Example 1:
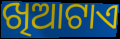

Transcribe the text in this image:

ଖିଆଟାଏ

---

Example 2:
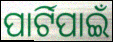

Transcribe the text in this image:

ପାର୍ଟିପାଇଁ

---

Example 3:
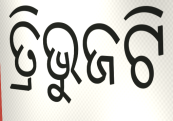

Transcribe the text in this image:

ତ୍ରିଭୁଜଟି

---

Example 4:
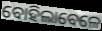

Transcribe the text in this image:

ବୋହିଲାବେଳେ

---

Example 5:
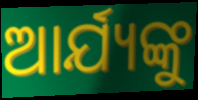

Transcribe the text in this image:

ଆର୍ଯ୍ୟଙ୍କୁ